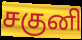
சகுனி